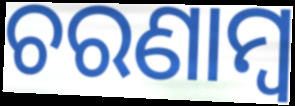
ଚରଣାମ୍ବ